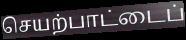
செயற்பாட்டைப்